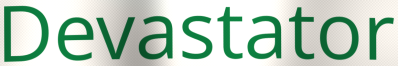
Devastator